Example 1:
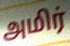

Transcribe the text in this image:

அமிர்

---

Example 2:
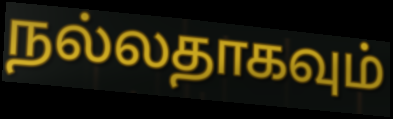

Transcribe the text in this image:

நல்லதாகவும்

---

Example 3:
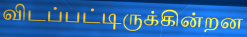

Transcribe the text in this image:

விடப்பட்டிருக்கின்றன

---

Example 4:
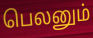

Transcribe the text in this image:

பெலனும்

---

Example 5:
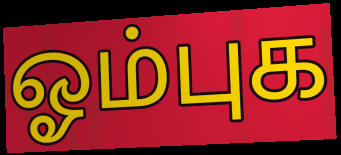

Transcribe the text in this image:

ஓம்புக